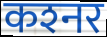
कश्‍नर